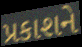
પ્રકાશને